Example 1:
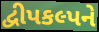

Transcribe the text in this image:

દ્વીપકલ્પને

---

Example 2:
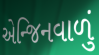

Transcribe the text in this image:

એન્જિનવાળું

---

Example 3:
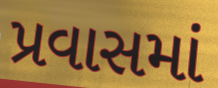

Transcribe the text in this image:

પ્રવાસમાં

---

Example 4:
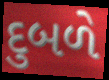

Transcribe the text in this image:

દુબળે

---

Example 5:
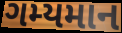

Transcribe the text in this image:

ગમ્યમાન